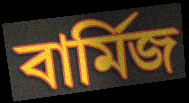
বাৰ্মিজ